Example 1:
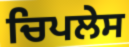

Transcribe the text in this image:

ਚਿਪਲੇਸ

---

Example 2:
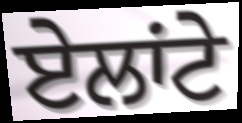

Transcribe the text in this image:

ਏਲਾਂਟੇ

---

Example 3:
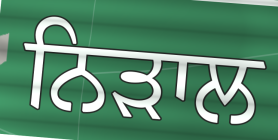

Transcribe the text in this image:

ਨਿੜਾਲ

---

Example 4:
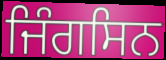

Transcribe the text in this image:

ਜਿੰਗਸਿਨ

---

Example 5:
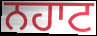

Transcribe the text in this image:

ਨਹਾਟ